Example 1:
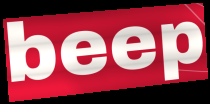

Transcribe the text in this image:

beep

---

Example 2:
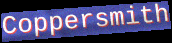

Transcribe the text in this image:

Coppersmith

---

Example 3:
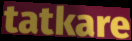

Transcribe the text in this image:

tatkare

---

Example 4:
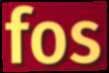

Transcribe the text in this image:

fos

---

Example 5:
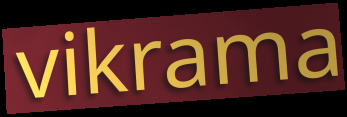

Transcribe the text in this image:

vikrama